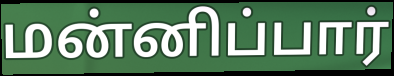
மன்னிப்பார்